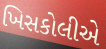
ખિસકોલીએ